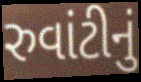
રુવાંટીનું